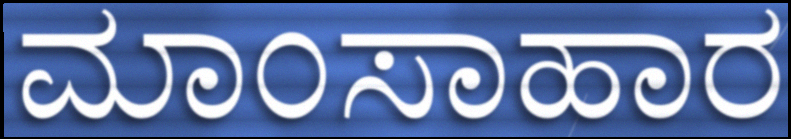
ಮಾಂಸಾಹಾರ